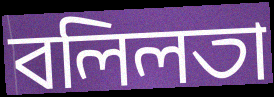
বলিলতা